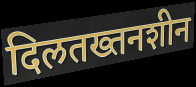
दिलतख्तनशीन